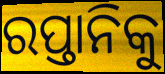
ରପ୍ତାନିକୁ